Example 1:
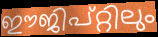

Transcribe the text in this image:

ഈജിപ്റ്റിലും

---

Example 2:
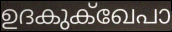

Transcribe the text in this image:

ഉദകുക്ഖേപാ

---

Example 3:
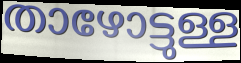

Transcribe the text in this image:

താഴോട്ടുള്ള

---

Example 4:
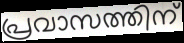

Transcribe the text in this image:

പ്രവാസത്തിന്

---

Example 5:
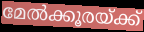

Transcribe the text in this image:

മേൽക്കൂരയ്ക്ക്